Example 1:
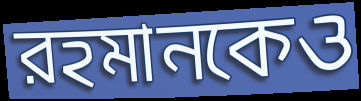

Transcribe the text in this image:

রহমানকেও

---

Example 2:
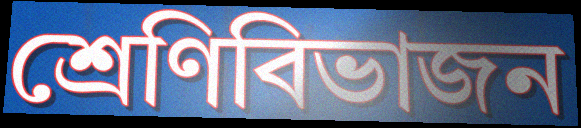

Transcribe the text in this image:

শ্রেণিবিভাজন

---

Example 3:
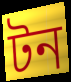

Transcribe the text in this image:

টন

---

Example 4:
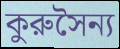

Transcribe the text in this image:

কুরুসৈন্য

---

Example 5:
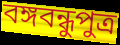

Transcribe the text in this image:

বঙ্গবন্ধুপুত্র